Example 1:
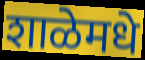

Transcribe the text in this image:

शाळेमधे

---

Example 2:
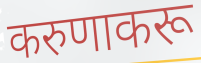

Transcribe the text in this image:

करुणाकरू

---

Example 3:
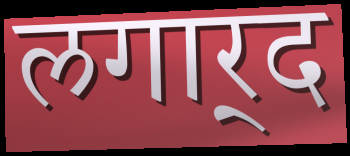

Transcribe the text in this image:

लगार्द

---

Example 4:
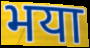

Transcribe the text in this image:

भया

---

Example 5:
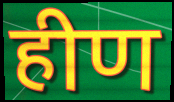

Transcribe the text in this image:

हीण